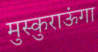
मुस्कुराऊंगा